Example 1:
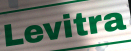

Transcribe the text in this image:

Levitra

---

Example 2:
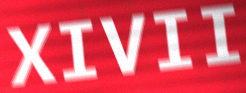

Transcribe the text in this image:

XIVII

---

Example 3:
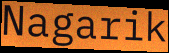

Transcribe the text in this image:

Nagarik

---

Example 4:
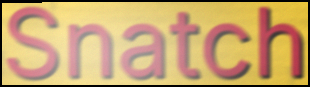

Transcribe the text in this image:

Snatch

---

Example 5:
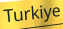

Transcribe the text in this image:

Turkiye